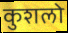
कुशलो